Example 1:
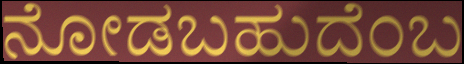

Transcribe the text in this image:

ನೋಡಬಹುದೆಂಬ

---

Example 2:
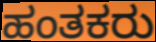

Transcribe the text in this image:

ಹಂತಕರು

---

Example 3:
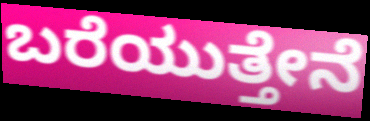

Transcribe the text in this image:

ಬರೆಯುತ್ತೇನೆ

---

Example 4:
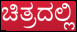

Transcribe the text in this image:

ಚಿತ್ರದಲ್ಲಿ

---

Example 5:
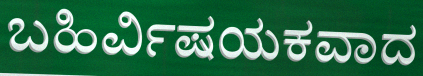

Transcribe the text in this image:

ಬಹಿರ್ವಿಷಯಕವಾದ